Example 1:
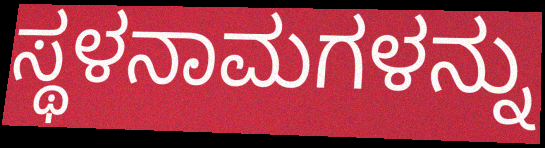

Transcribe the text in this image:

ಸ್ಥಳನಾಮಗಳನ್ನು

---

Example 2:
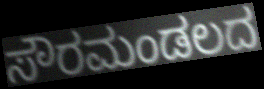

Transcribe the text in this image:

ಸೌರಮಂಡಲದ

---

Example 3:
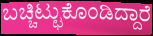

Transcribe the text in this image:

ಬಚ್ಚಿಟ್ಟುಕೊಂಡಿದ್ದಾರೆ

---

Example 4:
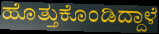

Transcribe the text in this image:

ಹೊತ್ತುಕೊಂಡಿದ್ದಾಳೆ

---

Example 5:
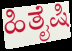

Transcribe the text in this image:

ಹಿತೈಷಿ